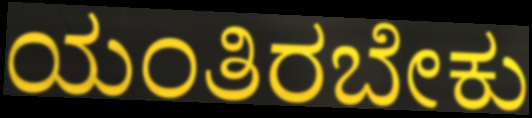
ಯಂತಿರಬೇಕು